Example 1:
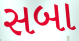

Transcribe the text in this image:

સબા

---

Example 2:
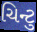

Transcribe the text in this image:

ચિન્ટુ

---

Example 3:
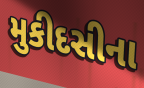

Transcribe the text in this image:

મુકીદસીના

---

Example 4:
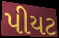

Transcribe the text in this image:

પીયટ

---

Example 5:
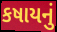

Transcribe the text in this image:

કષાયનું